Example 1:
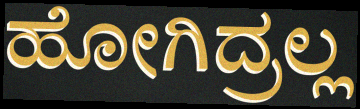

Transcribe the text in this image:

ಹೋಗಿದ್ರಲ್ಲ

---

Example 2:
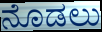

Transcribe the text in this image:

ನೊಡಲು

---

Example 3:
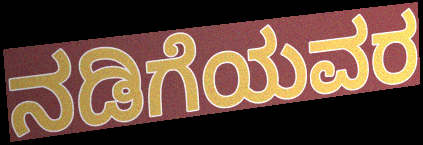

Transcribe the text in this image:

ನಡಿಗೆಯವರ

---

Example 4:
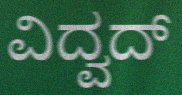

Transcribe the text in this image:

ವಿದ್ವದ್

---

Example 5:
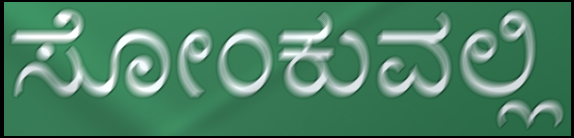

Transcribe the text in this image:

ಸೋಂಕುವಲ್ಲಿ